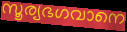
സൂര്യഭഗവാനെ